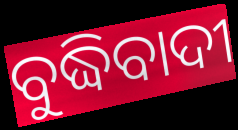
ବୁଦ୍ଧିବାଦୀ